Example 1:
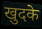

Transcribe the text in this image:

खुदके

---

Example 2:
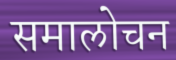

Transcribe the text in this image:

समालोचन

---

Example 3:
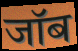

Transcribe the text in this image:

जॉब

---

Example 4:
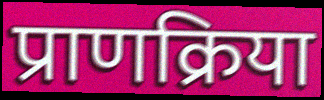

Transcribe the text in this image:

प्राणक्रिया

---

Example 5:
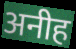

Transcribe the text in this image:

अनीह